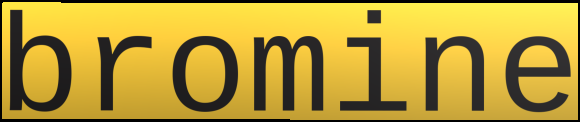
bromine